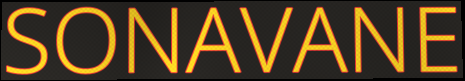
SONAVANE